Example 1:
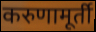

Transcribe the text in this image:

करुणामूर्ती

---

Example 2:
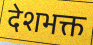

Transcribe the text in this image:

देशभक्त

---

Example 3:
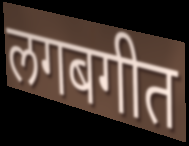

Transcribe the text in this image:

लगबगीत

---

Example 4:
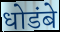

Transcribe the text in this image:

धोडंबे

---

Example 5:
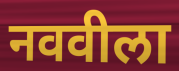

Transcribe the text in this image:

नववीला